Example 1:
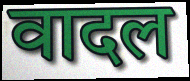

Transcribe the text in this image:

वादल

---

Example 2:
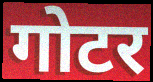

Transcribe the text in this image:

गोटर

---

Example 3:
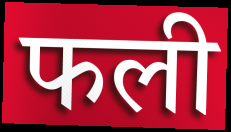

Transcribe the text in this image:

फली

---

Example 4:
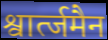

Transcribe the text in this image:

श्वार्त्जमैन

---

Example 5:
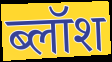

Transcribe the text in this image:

ब्लॉश